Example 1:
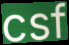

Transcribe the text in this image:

csf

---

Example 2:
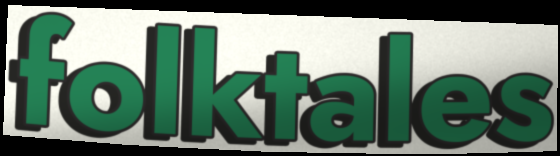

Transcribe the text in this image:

folktales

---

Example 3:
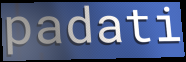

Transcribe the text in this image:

padati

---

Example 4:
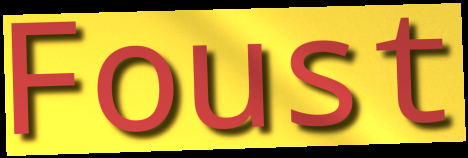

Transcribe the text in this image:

Foust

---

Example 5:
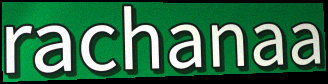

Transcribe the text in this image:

rachanaa